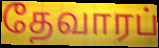
தேவாரப்